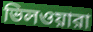
ভিলওয়ারা